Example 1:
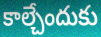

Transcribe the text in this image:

కాల్చేందుకు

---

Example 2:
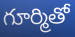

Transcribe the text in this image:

గూర్మితో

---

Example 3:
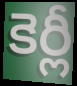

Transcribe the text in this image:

కెర్లీ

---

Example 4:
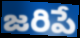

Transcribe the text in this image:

జరిపే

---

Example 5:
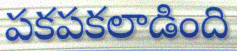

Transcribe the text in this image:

పకపకలాడింది